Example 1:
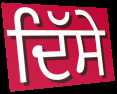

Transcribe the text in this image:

ਦਿੱਸੇ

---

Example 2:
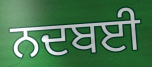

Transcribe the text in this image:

ਨਦਬਈ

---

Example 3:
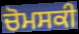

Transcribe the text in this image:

ਚੋਮਸਕੀ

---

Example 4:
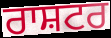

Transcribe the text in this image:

ਰਾਸ਼ਟਰ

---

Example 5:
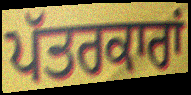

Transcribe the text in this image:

ਪੱਤਰਕਾਰਾਂ